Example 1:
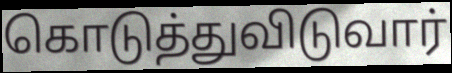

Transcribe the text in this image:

கொடுத்துவிடுவார்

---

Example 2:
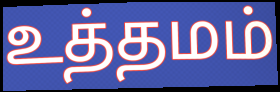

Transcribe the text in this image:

உத்தமம்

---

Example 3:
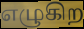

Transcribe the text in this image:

எழுகிற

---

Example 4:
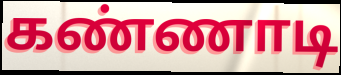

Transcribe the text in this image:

கண்ணாடி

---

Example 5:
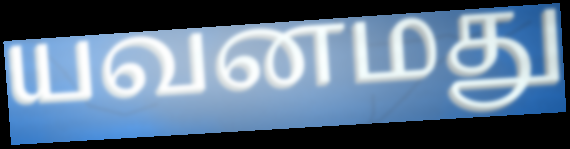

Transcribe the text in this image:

யவனமது